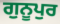
ਗੁਨੂਪੁਰ